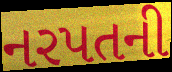
નરપતની